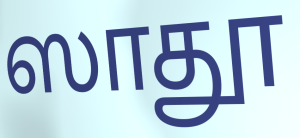
ஸாதூ